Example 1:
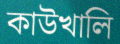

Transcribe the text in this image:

কাউখালি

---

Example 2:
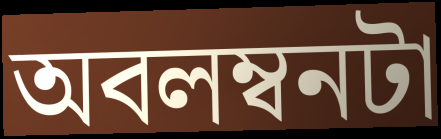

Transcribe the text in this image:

অবলম্বনটা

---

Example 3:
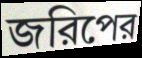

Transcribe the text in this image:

জরিপের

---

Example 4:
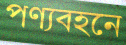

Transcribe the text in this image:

পণ্যবহনে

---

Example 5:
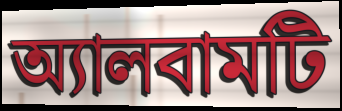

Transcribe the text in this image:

অ্যালবামটি